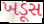
ખડૂસ